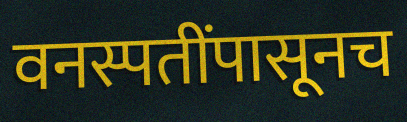
वनस्पतींपासूनच